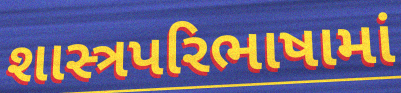
શાસ્ત્રપરિભાષામાં